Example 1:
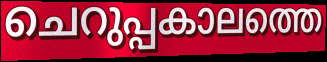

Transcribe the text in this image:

ചെറുപ്പകാലത്തെ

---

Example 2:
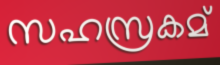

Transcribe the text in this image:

സഹസ്രകമ്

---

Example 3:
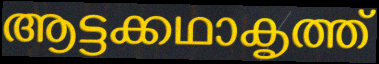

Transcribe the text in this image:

ആട്ടക്കഥാകൃത്ത്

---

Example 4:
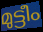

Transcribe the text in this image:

മുട്ടീം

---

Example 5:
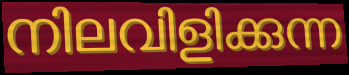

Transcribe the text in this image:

നിലവിളിക്കുന്ന